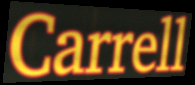
Carrell